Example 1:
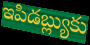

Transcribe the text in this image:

ఇపిడబ్ల్యుకు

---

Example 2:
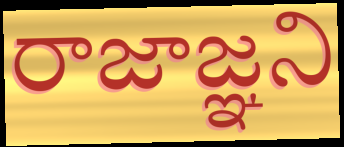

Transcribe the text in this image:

రాజాజ్ఞని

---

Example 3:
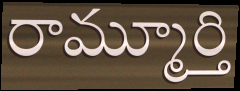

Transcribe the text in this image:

రామ్మూర్తి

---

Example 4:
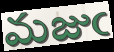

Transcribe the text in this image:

మజుఁ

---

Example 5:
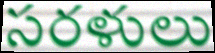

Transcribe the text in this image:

సరళులు